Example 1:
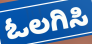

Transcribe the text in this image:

ಓಲಗಿಸಿ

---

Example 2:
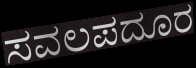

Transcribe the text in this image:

ಸವಲಪದೂರ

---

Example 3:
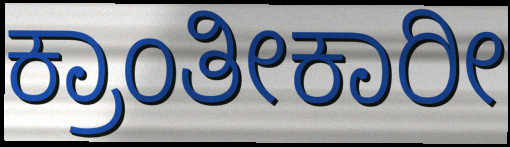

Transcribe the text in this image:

ಕ್ರಾಂತೀಕಾರೀ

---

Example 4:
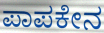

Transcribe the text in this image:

ಪಾಪಕೇನ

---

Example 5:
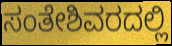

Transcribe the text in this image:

ಸಂತೇಶಿವರದಲ್ಲಿ